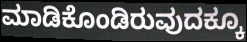
ಮಾಡಿಕೊಂಡಿರುವುದಕ್ಕೂ